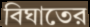
বিঘাতের